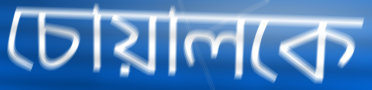
চোয়ালকে